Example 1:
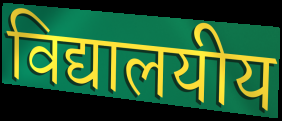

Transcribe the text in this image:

विद्यालयीय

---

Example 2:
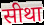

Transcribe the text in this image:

सीथा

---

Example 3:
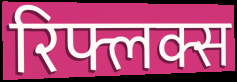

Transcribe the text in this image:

रिफ्लक्स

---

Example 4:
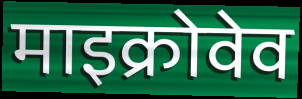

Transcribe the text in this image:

माइक्रोवेव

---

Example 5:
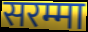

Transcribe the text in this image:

सरम्मा